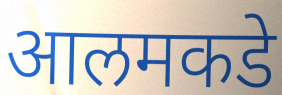
आलमकडे